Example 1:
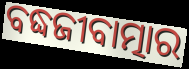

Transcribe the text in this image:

ବଦ୍ଧଜୀବାତ୍ମାର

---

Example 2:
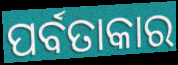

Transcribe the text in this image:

ପର୍ବତାକାର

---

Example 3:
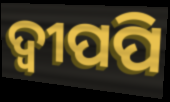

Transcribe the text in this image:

ଦ୍ବୀପପି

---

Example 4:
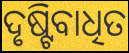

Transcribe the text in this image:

ଦୃଷ୍ଟିବାଧିତ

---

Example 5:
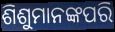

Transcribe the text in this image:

ଶିଶୁମାନଙ୍କପରି